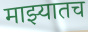
माझ्यातच